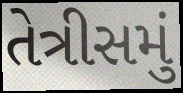
તેત્રીસમું